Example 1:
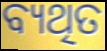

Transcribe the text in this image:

ବ୍ୟଥିତ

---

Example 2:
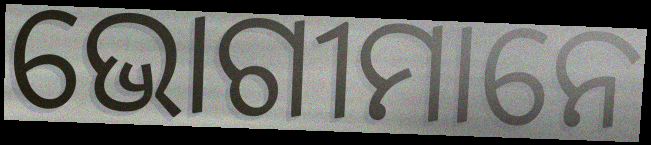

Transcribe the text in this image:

ଭୋଗୀମାନେ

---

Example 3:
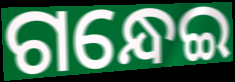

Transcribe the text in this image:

ଗନ୍ଧେଇ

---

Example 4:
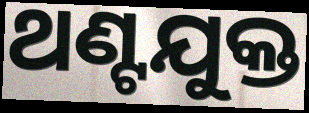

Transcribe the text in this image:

ଥଣ୍ଟଯୁକ୍ତ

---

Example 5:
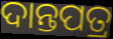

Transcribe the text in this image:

ଦାନ୍ତପତ୍ର